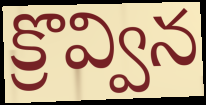
క్రొవ్విన